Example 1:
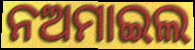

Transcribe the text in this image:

ନଅମାଇଲ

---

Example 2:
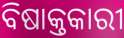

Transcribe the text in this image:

ବିଷାକ୍ତକାରୀ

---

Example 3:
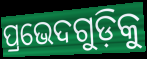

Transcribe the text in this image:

ପ୍ରଭେଦଗୁଡ଼ିକୁ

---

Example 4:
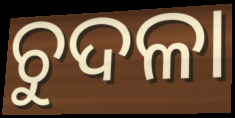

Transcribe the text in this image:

ଚୁଦଳା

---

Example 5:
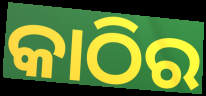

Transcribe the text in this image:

କାଠିର